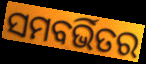
ସମବର୍ଭିତର